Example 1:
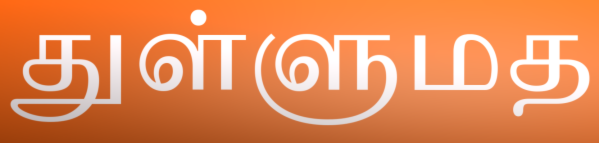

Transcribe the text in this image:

துள்ளுமத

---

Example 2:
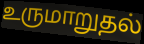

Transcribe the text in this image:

உருமாறுதல்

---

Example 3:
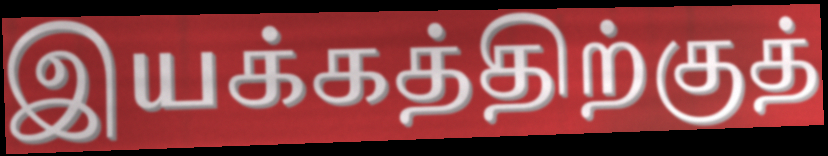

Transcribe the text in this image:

இயக்கத்திற்குத்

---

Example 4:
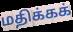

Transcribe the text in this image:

மதிக்கக்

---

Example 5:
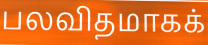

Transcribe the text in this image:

பலவிதமாகக்